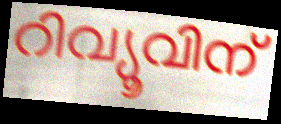
റിവ്യൂവിന്